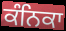
ਕੰਨਿਕਾ